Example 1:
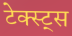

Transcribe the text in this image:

टेक्स्ट्स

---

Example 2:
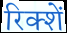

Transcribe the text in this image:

रिक्शें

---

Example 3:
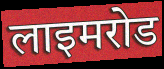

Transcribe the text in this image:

लाइमरोड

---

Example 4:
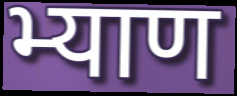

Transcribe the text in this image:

भ्याण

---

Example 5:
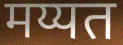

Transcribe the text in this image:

मय्यत